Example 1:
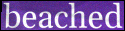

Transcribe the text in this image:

beached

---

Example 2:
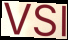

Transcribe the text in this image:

VSI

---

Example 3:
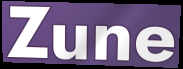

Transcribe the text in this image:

Zune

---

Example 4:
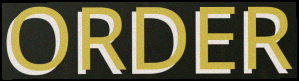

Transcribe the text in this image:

ORDER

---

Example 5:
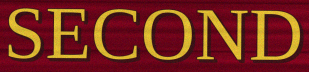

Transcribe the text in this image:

SECOND